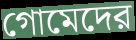
গোমেদের